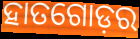
ହାତଗୋଡ଼ର